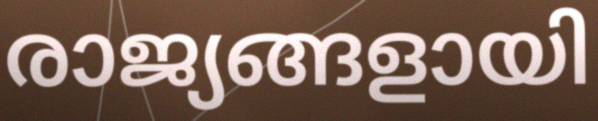
രാജ്യങ്ങളായി